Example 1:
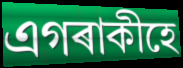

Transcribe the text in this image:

এগৰাকীহে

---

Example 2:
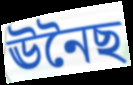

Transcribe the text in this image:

ঊনৈছ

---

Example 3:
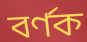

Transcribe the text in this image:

বৰ্ণক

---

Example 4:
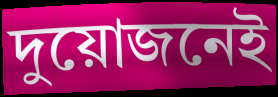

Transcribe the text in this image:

দুয়োজনেই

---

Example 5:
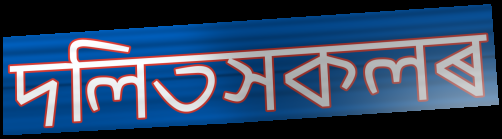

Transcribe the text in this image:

দলিতসকলৰ